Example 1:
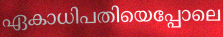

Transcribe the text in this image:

ഏകാധിപതിയെപ്പോലെ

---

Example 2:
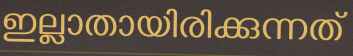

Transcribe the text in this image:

ഇല്ലാതായിരിക്കുന്നത്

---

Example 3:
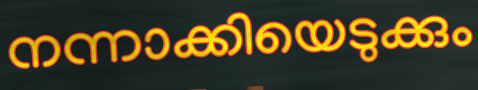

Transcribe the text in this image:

നന്നാക്കിയെടുക്കും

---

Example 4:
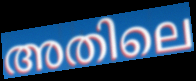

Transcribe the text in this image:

അതിലെ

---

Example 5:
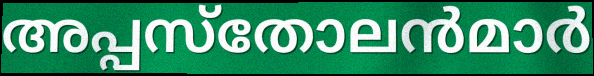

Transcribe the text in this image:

അപ്പസ്തോലൻമാർ